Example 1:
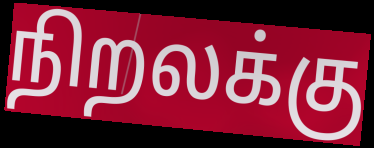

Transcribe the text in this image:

நிறலக்கு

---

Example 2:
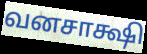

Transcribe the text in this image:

வனசாக்ஷி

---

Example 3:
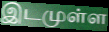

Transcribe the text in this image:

இடமுள்ள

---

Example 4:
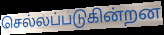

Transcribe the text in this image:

செல்லப்படுகின்றன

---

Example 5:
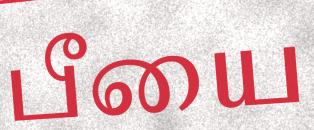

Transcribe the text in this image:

பீயை